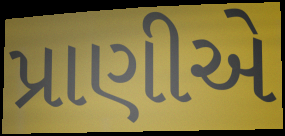
પ્રાણીએ